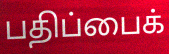
பதிப்பைக்